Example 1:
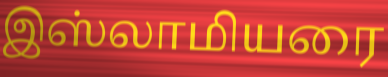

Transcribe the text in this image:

இஸ்லாமியரை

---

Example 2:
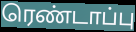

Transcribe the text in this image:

ரெண்டாப்பு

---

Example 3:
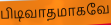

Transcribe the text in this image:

பிடிவாதமாகவே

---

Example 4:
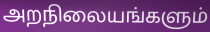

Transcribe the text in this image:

அறநிலையங்களும்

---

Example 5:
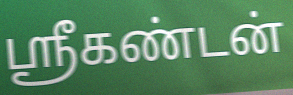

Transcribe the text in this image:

ஸ்ரீகண்டன்